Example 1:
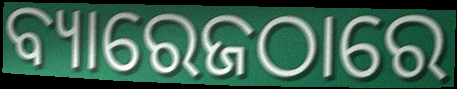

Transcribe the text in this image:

ବ୍ୟାରେଜଠାରେ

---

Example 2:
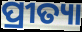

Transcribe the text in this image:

ପ୍ରୀତ୍ୟା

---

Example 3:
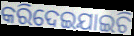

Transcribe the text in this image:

କରିଦେଇଯାଇଚି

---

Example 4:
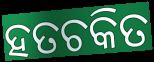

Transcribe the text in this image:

ହତଚକିତ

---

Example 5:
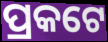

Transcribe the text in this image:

ପ୍ରକଟେ